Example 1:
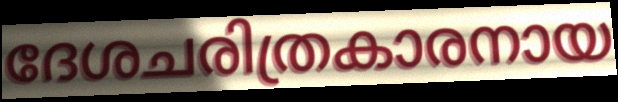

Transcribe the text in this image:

ദേശചരിത്രകാരനായ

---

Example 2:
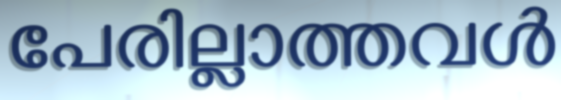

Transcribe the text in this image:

പേരില്ലാത്തവൾ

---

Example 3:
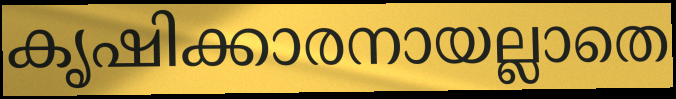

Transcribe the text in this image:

കൃഷിക്കാരനായല്ലാതെ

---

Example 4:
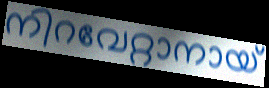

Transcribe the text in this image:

നിറവേറ്റാനായ്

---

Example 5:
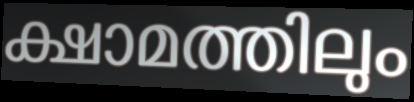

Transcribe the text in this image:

ക്ഷാമത്തിലും